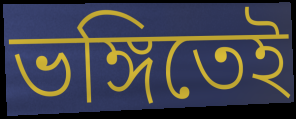
ভঙ্গিতেই